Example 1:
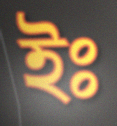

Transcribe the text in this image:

ইঃ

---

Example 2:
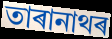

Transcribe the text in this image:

তাৰানাথৰ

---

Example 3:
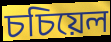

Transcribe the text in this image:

চচিয়েল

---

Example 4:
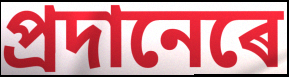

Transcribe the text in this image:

প্ৰদানেৰে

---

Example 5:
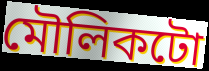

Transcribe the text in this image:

মৌলিকটো